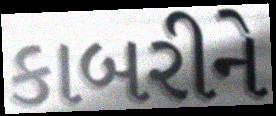
કાબરીને